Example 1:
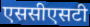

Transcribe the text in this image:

एससीएसटी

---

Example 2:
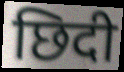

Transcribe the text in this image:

छिदी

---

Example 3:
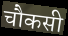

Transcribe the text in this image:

चौकसी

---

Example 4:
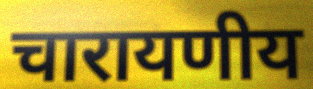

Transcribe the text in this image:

चारायणीय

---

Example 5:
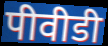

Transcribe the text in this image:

पीवीडी